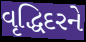
વૃદ્ધિદરને